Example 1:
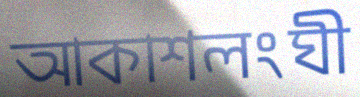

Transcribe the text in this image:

আকাশলংঘী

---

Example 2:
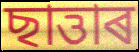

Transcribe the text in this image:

ছাত্তাৰ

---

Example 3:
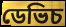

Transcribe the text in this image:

ডেভিচ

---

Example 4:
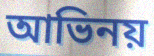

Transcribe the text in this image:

আভিনয়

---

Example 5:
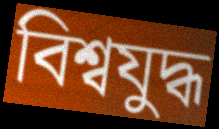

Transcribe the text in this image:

বিশ্বযুদ্ধ